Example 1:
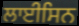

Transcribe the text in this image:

ਲਾਈਸਿਨ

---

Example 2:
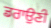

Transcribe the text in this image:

ਡਰਾਉਣੀ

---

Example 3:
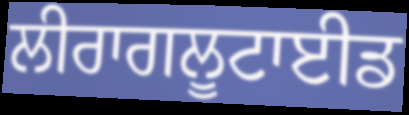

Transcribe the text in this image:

ਲੀਰਾਗਲੂਟਾਈਡ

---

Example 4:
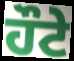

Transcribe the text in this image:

ਹੌਟੇ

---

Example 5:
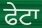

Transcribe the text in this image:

ਫੇਟਾ